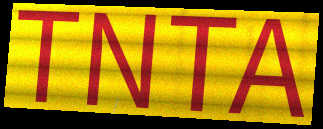
TNTA